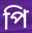
পি